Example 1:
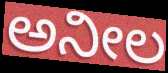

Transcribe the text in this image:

ಅನೀಲ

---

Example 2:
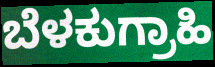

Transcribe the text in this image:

ಬೆಳಕುಗ್ರಾಹಿ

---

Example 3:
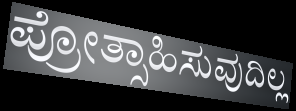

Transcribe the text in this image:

ಪ್ರೋತ್ಸಾಹಿಸುವುದಿಲ್ಲ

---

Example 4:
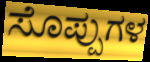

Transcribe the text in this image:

ಸೊಪ್ಪುಗಳ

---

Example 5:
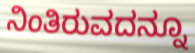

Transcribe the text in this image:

ನಿಂತಿರುವದನ್ನೂ